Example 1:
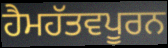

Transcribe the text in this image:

ਹੈਮਹੱਤਵਪੂਰਨ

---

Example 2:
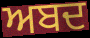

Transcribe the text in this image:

ਅਬਦ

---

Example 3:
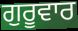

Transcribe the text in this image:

ਗੁਰੂਵਾਰ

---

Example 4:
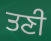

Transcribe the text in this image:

ਤਣੀ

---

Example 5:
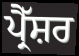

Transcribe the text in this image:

ਪ੍ਰੈੱਸ਼ਰ